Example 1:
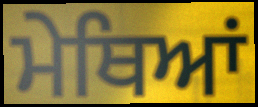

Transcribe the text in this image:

ਮੇਥਿਆਂ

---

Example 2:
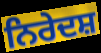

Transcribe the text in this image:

ਨਿਰੇਦਸ਼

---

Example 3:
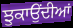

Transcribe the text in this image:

ਝੁਕਾਉਂਦੀਆਂ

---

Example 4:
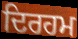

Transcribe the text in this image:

ਦਿਰਹਮ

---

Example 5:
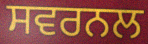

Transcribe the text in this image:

ਸਵਰਨਲ